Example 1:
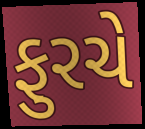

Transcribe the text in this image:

ફુરચે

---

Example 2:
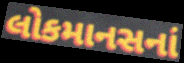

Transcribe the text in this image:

લોકમાનસનાં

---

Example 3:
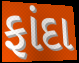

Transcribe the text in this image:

ફાંદા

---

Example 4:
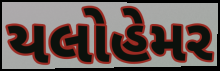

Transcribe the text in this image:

યલોહેમર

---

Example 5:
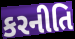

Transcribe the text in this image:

કરનીતિ